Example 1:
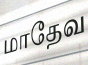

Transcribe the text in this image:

மாதேவ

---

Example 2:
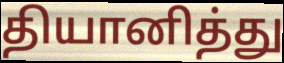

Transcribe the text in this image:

தியானித்து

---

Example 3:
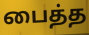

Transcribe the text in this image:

பைத்த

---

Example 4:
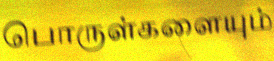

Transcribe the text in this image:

பொருள்களையும்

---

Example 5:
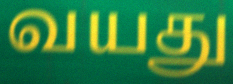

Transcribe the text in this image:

வயது